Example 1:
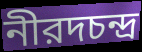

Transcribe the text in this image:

নীরদচন্দ্র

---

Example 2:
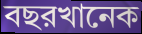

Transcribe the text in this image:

বছরখানেক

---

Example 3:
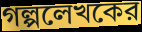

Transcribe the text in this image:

গল্পলেখকের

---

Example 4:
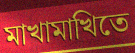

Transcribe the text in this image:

মাখামাখিতে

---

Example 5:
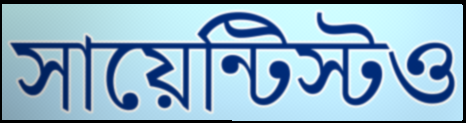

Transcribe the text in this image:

সায়েন্টিস্টও